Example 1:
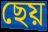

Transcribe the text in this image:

ছেয়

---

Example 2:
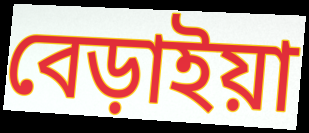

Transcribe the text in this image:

বেড়াইয়া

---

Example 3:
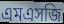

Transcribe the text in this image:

এমএসজি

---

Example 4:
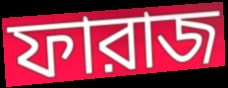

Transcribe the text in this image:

ফারাজ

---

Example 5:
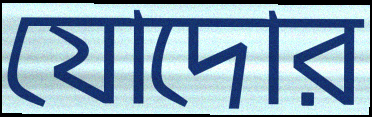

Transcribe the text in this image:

যোদোর